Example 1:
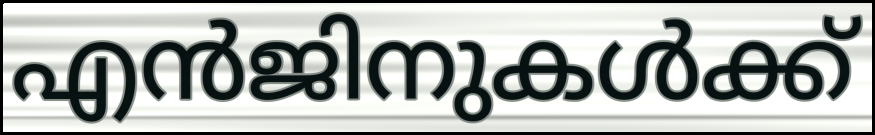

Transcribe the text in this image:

എൻജിനുകൾക്ക്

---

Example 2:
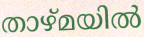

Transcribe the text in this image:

താഴ്മയിൽ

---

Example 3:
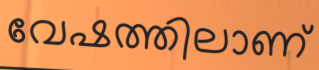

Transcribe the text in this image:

വേഷത്തിലാണ്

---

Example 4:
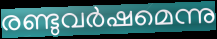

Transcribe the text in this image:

രണ്ടുവർഷമെന്നു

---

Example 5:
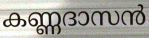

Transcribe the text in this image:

കണ്ണദാസൻ